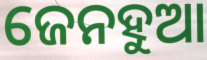
ଜେନହୁଆ